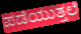
ಪಡೆಯುತ್ತಲೆ